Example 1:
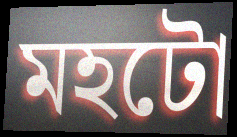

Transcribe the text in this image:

মহটো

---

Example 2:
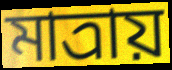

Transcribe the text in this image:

মাত্ৰায়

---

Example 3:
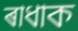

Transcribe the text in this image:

ৰাধাক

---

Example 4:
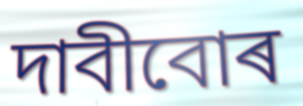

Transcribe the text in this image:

দাবীবোৰ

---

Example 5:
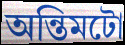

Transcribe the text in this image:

অন্তিমটো